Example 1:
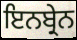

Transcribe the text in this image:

ਇਨਬ੍ਰੇਨ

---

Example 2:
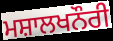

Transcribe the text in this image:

ਮਸ਼ਾਲਖਨੌਰੀ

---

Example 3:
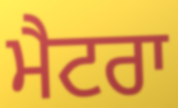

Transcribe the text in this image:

ਮੈਟਰਾ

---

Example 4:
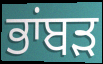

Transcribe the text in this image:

ਭਾਂਬੜ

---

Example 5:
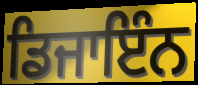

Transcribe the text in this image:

ਡਿਜਾਇੰਨ